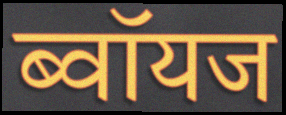
ब्वॉयज